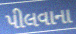
પીલવાના